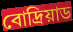
বোদ্রিয়াড